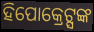
ହିପୋକ୍ରେଟ୍ସଙ୍କ